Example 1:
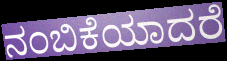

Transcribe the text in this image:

ನಂಬಿಕೆಯಾದರೆ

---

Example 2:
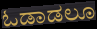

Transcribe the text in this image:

ಓಡಾಡಲೂ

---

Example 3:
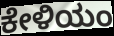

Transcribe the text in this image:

ಕೇಳಿಯಂ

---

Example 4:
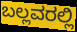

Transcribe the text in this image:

ಬಲ್ಲವರಲ್ಲಿ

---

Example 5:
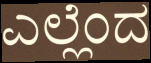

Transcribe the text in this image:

ಎಲ್ಲೆಂದ